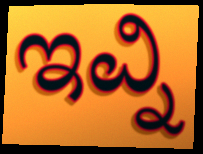
ಇವ್ನಿ